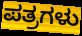
ಪತ್ರಗಳು